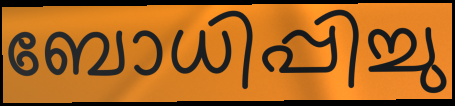
ബോധിപ്പിച്ചു